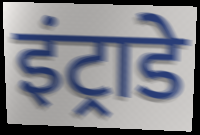
इंट्राडे